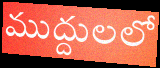
ముద్దులలో